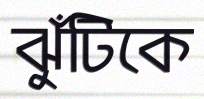
ঝুঁটিকে